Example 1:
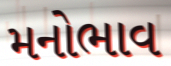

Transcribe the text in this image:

મનોભાવ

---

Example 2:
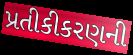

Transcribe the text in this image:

પ્રતીકીકરણની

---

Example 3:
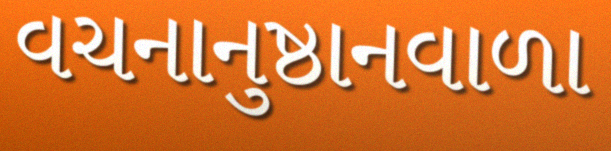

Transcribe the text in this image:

વચનાનુષ્ઠાનવાળા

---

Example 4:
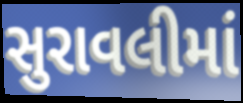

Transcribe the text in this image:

સુરાવલીમાં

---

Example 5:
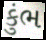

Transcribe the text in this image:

કુંભ